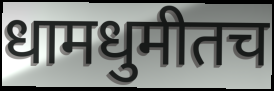
धामधुमीतच